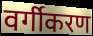
वर्गीकरण